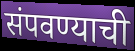
संपवण्याची